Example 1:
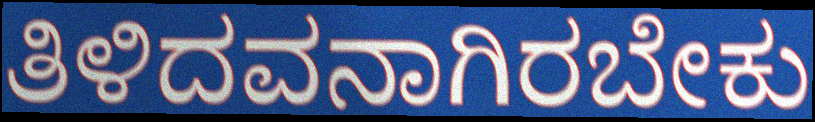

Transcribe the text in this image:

ತಿಳಿದವನಾಗಿರಬೇಕು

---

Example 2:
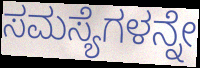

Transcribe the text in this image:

ಸಮಸ್ಯೆಗಳನ್ನೇ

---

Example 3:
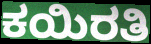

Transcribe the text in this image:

ಕಯಿರತಿ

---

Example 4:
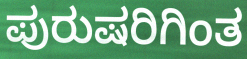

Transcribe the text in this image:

ಪುರುಷರಿಗಿಂತ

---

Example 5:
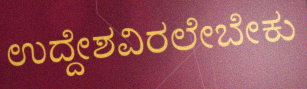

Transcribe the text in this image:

ಉದ್ದೇಶವಿರಲೇಬೇಕು